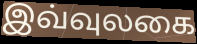
இவ்வுலகை